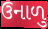
ઉનાળુ